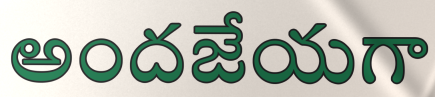
అందజేయగా